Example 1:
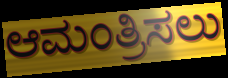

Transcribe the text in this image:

ಆಮಂತ್ರಿಸಲು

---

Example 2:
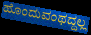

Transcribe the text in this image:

ಹೊಂದುವಂಥದ್ದಲ್ಲ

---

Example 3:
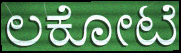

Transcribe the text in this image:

ಲಕೋಟೆ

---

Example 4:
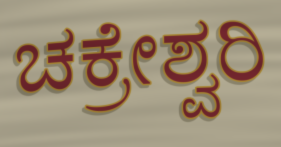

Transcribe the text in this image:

ಚಕ್ರೇಶ್ವರಿ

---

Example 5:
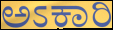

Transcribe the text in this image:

ಅಽಕಾರಿ